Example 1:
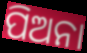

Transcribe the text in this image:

ପିଅନା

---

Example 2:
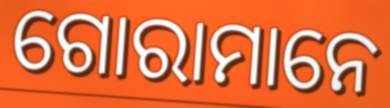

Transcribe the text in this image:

ଗୋରାମାନେ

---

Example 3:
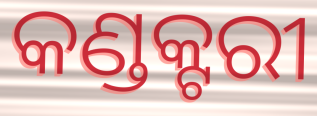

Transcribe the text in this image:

କଣ୍ଡକ୍ଟରୀ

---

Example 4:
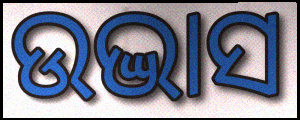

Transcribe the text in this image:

ଉଦ୍ଭାସ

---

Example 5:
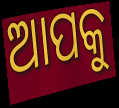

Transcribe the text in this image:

ଆପକୁ